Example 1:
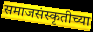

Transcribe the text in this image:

समाजसंस्कृतीच्या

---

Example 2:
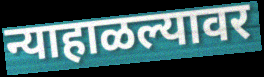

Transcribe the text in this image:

न्याहाळल्यावर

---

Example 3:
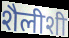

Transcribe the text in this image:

शैलीशी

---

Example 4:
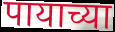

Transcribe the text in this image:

पायाच्या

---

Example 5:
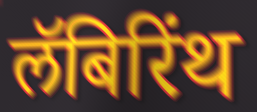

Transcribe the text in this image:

लॅबिरिंथ